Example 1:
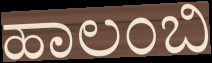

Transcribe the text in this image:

ಹಾಲಂಬಿ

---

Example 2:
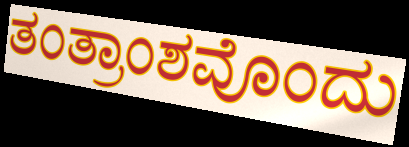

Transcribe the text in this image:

ತಂತ್ರಾಂಶವೊಂದು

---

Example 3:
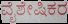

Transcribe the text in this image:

ವೈಶೇಷಿಕರ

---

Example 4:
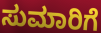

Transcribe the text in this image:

ಸುಮಾರಿಗೆ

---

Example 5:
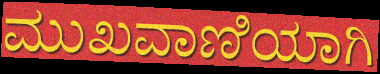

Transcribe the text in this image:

ಮುಖವಾಣಿಯಾಗಿ